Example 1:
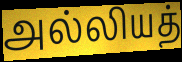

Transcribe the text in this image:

அல்லியத்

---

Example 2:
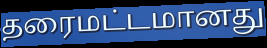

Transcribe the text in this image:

தரைமட்டமானது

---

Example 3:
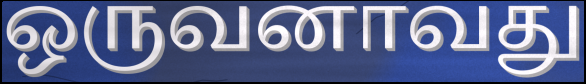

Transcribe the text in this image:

ஒருவனாவது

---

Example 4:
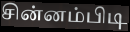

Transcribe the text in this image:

சின்னம்பிடி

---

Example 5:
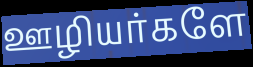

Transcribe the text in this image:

ஊழியர்களே